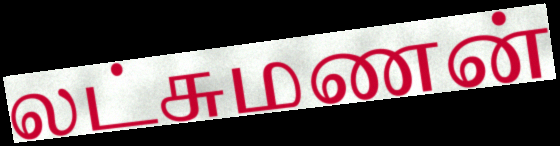
லட்சுமணன்